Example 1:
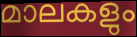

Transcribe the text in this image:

മാലകളും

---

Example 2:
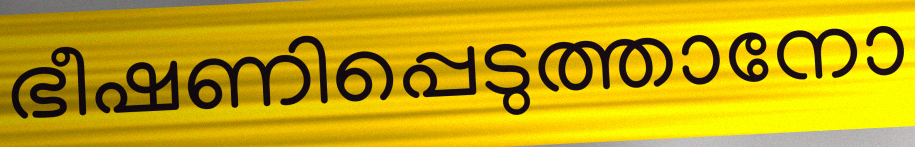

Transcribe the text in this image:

ഭീഷണിപ്പെടുത്താനോ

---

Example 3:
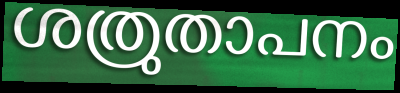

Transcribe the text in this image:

ശത്രുതാപനം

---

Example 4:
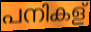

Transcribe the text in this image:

പനികള്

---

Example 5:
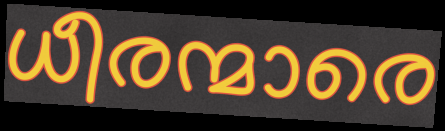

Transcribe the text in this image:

ധീരന്മാരെ